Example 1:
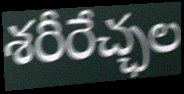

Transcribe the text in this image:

శరీరేచ్ఛల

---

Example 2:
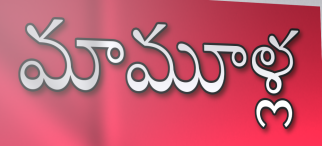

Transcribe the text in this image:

మామూళ్ల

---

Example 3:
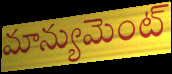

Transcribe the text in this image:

మాన్యుమెంట్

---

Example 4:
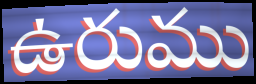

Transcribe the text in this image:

ఉరుము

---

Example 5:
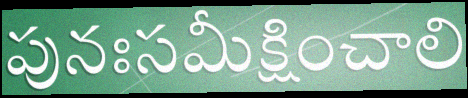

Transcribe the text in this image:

పునఃసమీక్షించాలి